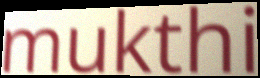
mukthi